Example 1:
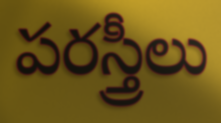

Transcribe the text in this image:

పరస్త్రీలు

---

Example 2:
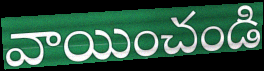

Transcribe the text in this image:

వాయించండి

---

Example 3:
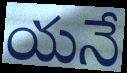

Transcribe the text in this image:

యనే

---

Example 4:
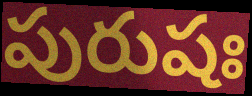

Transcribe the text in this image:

పురుషః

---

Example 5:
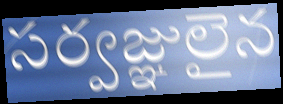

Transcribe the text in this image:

సర్వజ్ఞులైన